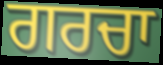
ਗਰਚਾ